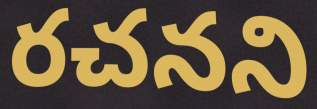
రచనని